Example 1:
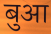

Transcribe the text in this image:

बुआ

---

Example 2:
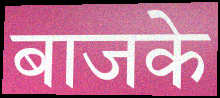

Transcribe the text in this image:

बाजके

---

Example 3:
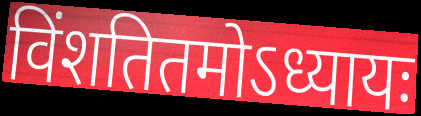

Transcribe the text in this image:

विंशतितमोऽध्यायः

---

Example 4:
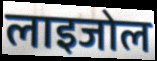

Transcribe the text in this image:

लाइजोल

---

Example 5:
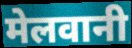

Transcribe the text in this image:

मेलवानी